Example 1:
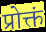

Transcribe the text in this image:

प्रोक्तं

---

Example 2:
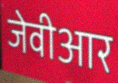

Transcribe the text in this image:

जेवीआर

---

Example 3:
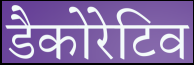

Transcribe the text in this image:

डैकोरेटिव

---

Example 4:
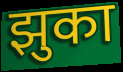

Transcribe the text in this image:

झुका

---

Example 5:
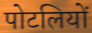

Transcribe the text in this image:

पोटलियों